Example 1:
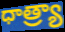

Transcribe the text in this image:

ధాత్ర్యా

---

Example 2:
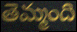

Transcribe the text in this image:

తెమ్మంది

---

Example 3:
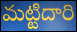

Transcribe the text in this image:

మట్టిదారి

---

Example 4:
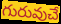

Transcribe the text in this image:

గురువుచే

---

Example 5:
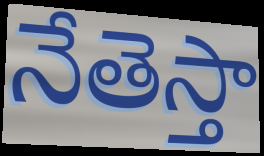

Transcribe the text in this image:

నేతెస్తా